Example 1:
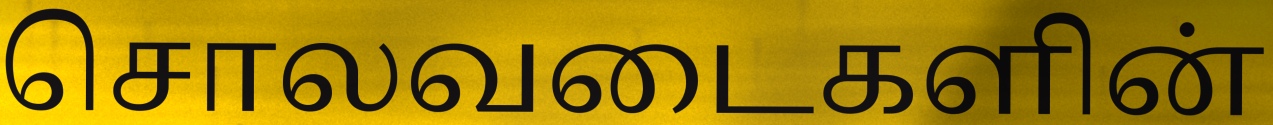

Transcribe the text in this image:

சொலவடைகளின்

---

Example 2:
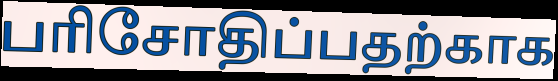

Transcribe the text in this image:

பரிசோதிப்பதற்காக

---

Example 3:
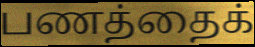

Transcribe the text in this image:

பணத்தைக்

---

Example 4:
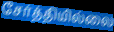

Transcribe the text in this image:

சேர்த்தியில்லை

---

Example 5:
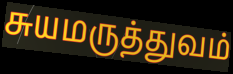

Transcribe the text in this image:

சுயமருத்துவம்